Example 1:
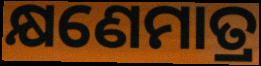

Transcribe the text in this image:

କ୍ଷଣେମାତ୍ର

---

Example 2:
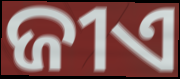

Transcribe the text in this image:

ଜୀଏ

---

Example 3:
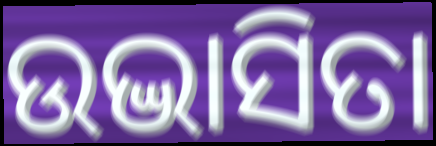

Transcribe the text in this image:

ଉଦ୍ଭାସିତା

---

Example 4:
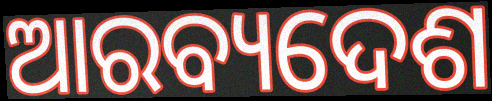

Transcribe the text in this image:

ଆରବ୍ୟଦେଶ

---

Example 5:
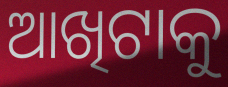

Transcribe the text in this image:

ଆଖିଟାକୁ